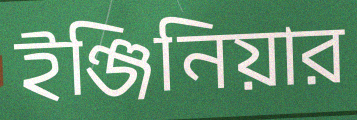
ইঞ্জিনিয়ার